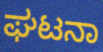
ಘಟನಾ